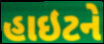
હાઇટને